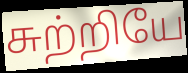
சுற்றியே